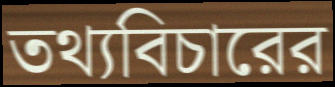
তথ্যবিচারের